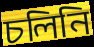
চলিনি